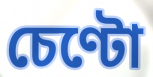
চেণ্টো